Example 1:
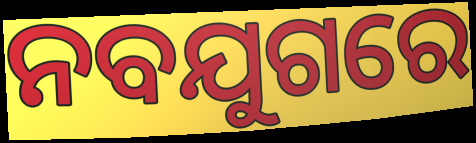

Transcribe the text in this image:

ନବଯୁଗରେ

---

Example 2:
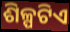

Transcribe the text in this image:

ଶିଳ୍ପଟିଏ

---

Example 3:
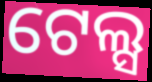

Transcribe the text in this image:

ଟେଲ୍ସ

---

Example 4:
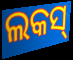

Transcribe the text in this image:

ଲକସ୍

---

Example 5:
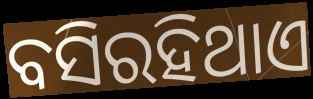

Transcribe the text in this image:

ବସିରହିଥାଏ